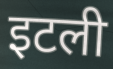
इटली